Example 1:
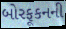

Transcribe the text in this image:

બોરફૂકનની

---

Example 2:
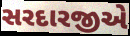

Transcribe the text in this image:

સરદારજીએ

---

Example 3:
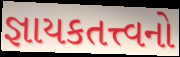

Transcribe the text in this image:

જ્ઞાયકતત્ત્વનો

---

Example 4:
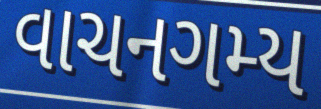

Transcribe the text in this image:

વાચનગમ્ય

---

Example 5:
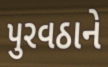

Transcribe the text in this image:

પુરવઠાને